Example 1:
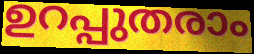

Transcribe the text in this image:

ഉറപ്പുതരാം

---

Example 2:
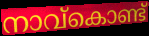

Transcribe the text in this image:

നാവ്കൊണ്ട്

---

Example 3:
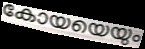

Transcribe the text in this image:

കോയയെയും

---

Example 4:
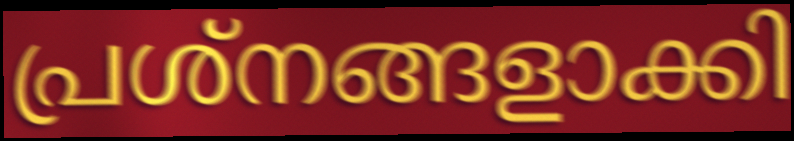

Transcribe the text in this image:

പ്രശ്നങ്ങളാക്കി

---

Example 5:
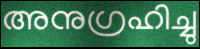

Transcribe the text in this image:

അനുഗ്രഹിച്ചു